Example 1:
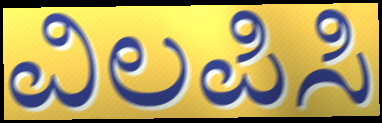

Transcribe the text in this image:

ವಿಲಪಿಸಿ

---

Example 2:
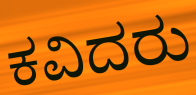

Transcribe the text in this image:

ಕವಿದರು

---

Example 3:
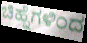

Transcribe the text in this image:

ಚಿಹ್ನೆಗಳಿಂದ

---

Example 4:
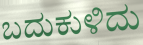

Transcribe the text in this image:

ಬದುಕುಳಿದು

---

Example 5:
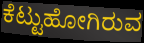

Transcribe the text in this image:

ಕೆಟ್ಟುಹೋಗಿರುವ